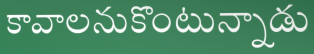
కావాలనుకొంటున్నాడు